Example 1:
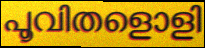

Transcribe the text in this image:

പൂവിതളൊളി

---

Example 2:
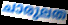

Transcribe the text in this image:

ചാരുലത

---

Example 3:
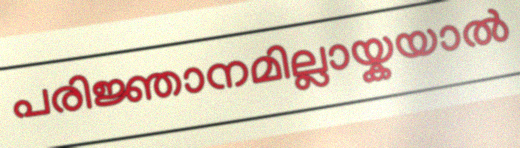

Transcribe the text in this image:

പരിജ്ഞാനമില്ലായ്കയാൽ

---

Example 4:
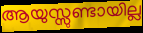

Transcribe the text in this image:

ആയുസ്സുണ്ടായില്ല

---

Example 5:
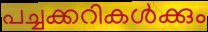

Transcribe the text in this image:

പച്ചക്കറികൾക്കും